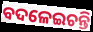
ବଦଳେଇଚନ୍ତି